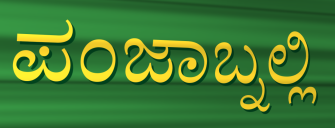
ಪಂಜಾಬ್ನಲ್ಲಿ